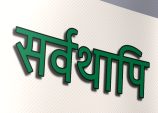
सर्वथापि